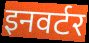
इनवर्टर